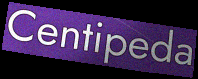
Centipeda